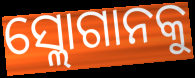
ସ୍ଲୋଗାନକୁ